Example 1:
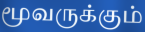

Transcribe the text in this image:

மூவருக்கும்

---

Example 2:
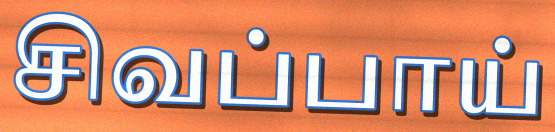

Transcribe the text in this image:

சிவப்பாய்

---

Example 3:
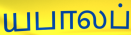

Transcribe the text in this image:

யபாலப்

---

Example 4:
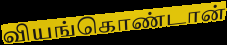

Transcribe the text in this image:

வியங்கொண்டான்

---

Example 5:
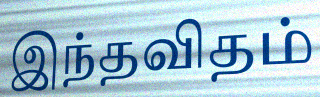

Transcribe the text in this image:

இந்தவிதம்